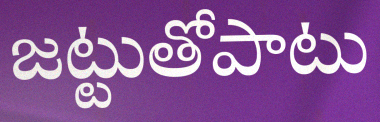
జట్టుతోపాటు